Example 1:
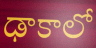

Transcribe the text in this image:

ఢాకాలో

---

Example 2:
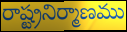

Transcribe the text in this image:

రాష్ట్రనిర్మాణము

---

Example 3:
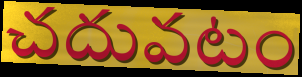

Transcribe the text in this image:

చదువటం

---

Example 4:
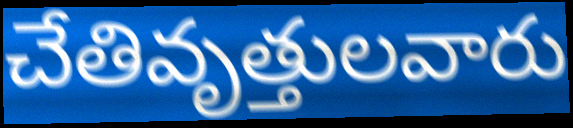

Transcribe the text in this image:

చేతివృత్తులవారు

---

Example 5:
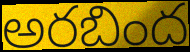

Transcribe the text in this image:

అరబింద